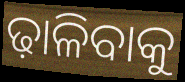
ଢ଼ାଳିବାକୁ